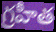
గ్రహీత